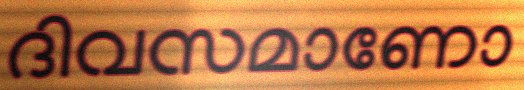
ദിവസമാണോ